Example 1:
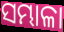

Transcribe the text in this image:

ସମ୍ଭାଳା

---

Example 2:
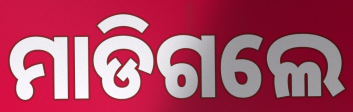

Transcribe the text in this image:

ମାଡିଗଲେ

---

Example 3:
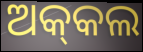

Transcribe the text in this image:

ଅକ୍‍କଲ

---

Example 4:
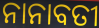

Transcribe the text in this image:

ନାନାବତୀ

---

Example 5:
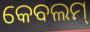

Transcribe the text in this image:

କେବଲମ୍